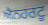
ਐਨਹਰਟੂ